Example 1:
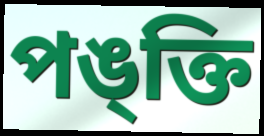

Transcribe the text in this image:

পঙ্ক্তি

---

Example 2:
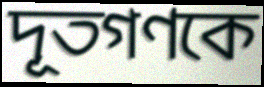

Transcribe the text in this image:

দূতগণকে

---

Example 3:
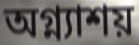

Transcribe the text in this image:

অগ্ন্যাশয়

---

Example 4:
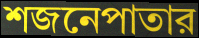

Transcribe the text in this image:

শজনেপাতার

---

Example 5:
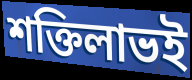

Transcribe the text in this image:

শক্তিলাভই